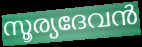
സൂര്യദേവൻ